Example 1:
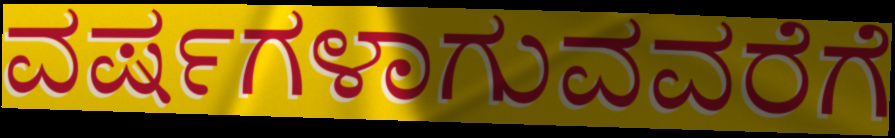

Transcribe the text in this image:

ವರ್ಷಗಳಾಗುವವರೆಗೆ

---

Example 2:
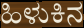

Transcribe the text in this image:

ಹಿಳುಕಿನ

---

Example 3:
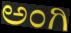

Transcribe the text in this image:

ಅಂಗಿ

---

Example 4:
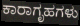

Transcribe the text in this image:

ಕಾರಾಗೃಹಗಳು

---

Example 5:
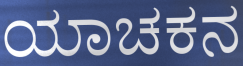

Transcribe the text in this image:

ಯಾಚಕನ